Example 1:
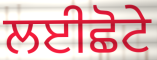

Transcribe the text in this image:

ਲਈਛੋਟੇ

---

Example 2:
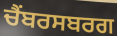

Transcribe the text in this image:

ਚੈਂਬਰਸਬਰਗ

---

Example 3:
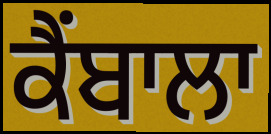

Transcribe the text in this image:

ਕੈਂਬਾਲਾ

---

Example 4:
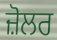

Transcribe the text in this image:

ਜ਼ੋਲਰ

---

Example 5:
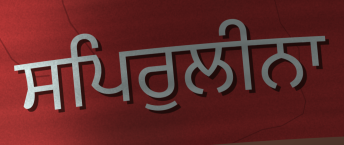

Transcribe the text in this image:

ਸਪਿਰੁਲੀਨਾ